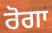
ਰੋਗਾ